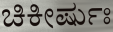
ಚಿಕೀರ್ಷುಃ